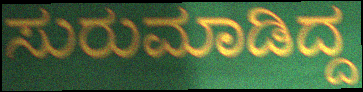
ಸುರುಮಾಡಿದ್ದ